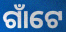
ଗାଁଟେ